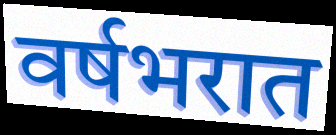
वर्षभरात